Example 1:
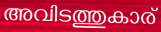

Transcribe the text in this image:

അവിടത്തുകാര്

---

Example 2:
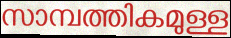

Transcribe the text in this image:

സാമ്പത്തികമുള്ള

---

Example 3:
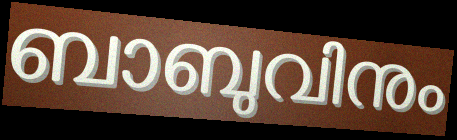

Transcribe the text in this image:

ബാബുവിനും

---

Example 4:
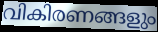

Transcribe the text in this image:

വികിരണങ്ങളും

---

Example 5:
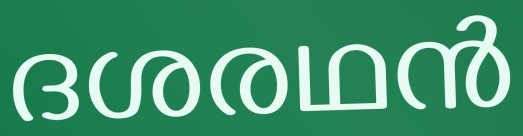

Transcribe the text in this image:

ദശരഥൻ